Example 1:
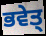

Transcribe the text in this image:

ਭਵੇਤ੍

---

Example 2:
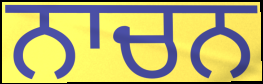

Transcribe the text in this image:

ਨਾਚਨ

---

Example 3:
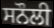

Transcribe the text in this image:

ਸਨੌਲੀ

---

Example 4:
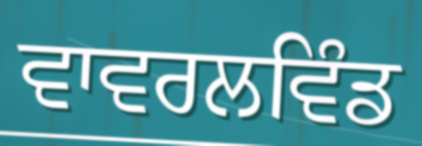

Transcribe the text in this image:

ਵਾਵਰਲਵਿੰਡ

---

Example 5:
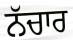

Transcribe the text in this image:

ਨੱਚਾਰ